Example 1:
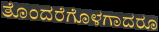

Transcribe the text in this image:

ತೊಂದರೆಗೊಳಗಾದರೂ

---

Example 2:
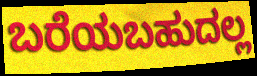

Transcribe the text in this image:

ಬರೆಯಬಹುದಲ್ಲ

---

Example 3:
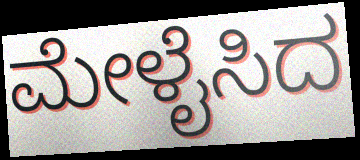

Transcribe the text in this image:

ಮೇಳೈಸಿದ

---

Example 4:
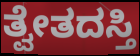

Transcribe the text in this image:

ತ್ವೇತದಸ್ತಿ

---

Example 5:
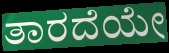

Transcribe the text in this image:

ತಾರದೆಯೇ